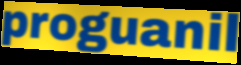
proguanil